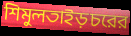
শিমুলতাইড়চরের